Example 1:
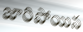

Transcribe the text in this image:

జారిపోయిన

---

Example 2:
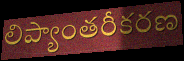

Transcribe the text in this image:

లిప్యాంతరీకరణ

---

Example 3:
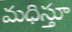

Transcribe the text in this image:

మధిస్తూ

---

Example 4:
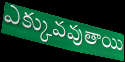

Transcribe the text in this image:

ఎక్కువవుతాయి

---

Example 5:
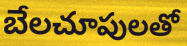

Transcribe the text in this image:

బేలచూపులతో